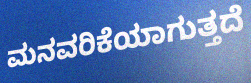
ಮನವರಿಕೆಯಾಗುತ್ತದೆ